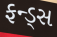
ફન્ડ્સ